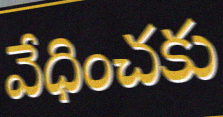
వేధించకు